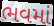
ભવમાં